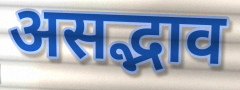
असद्भाव